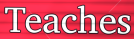
Teaches